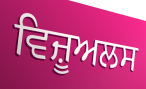
ਵਿਜ਼ੂਅਲਸ